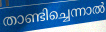
താണ്ടിച്ചെന്നാൽ